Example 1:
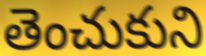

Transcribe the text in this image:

తెంచుకుని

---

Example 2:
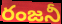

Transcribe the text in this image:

రంజనీ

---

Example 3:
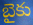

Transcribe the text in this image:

బైకు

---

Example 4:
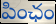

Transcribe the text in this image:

పింఛం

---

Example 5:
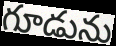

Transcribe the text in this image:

గూడును